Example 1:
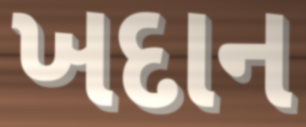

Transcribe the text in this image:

ખદાન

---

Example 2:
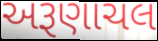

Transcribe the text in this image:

અરૂણાચલ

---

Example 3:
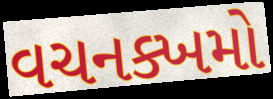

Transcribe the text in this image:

વચનક્ખમો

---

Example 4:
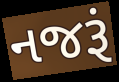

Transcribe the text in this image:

નજરૂં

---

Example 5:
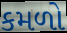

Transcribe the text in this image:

કમળો